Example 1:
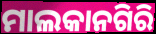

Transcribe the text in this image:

ମାଲକାନଗିରି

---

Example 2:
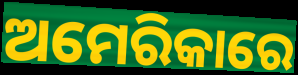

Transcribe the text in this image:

ଅମେରିକାରେ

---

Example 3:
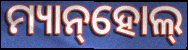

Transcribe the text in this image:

ମ୍ୟାନ୍‌ହୋଲ୍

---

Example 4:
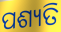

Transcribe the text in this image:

ପଶ୍ୟତି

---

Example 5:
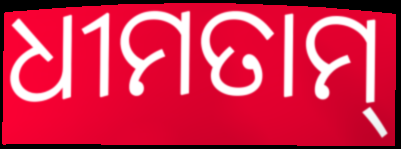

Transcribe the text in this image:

ଧୀମତାମ୍